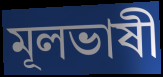
মূলভাষী